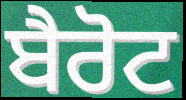
ਬੈਰੋਟ